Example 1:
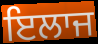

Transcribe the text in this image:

ਇਲਾਜ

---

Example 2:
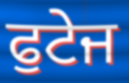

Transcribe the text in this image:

ਫੁਟੇਜ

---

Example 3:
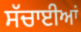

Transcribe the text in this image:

ਸੱਚਾਈਆਂ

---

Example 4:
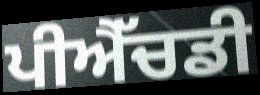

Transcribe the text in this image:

ਪੀਐੱਚਡੀ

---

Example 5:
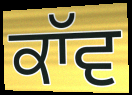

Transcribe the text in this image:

ਕਾੱਵ